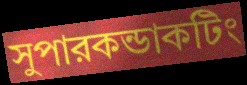
সুপারকন্ডাকটিং